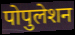
पोपुलेशन